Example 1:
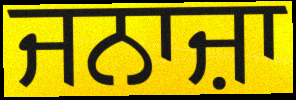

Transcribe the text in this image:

ਜਨਾਜ਼ਾ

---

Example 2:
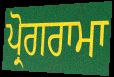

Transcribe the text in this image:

ਪ੍ਰੋਗਰਾਮਾ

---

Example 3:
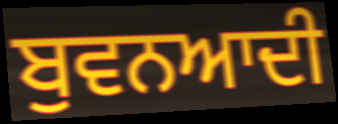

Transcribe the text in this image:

ਬੁਵਨਆਦੀ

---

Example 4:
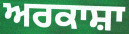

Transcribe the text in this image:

ਅਰਕਾਸ਼ਾ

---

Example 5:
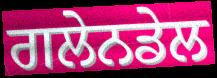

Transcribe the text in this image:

ਗਲੇਨਡੇਲ